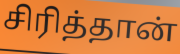
சிரித்தான்